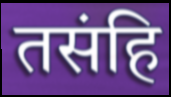
तसंहि